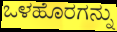
ಒಳಹೊರಗನ್ನು